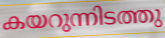
കയറുന്നിടത്തു